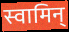
स्वामिन्